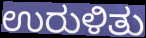
ಉರುಳಿತು